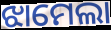
ଝାମେଲା